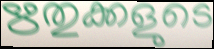
ഋതുക്കളുടെ